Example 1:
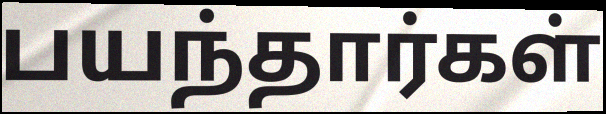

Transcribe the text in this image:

பயந்தார்கள்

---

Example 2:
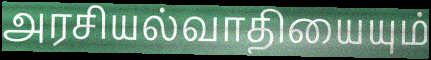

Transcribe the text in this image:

அரசியல்வாதியையும்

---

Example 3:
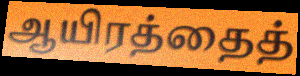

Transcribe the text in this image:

ஆயிரத்தைத்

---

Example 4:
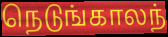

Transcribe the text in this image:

நெடுங்காலந்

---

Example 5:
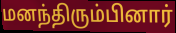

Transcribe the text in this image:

மனந்திரும்பினார்